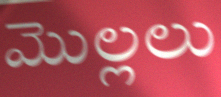
మొల్లలు